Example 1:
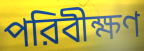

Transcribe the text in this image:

পরিবীক্ষণ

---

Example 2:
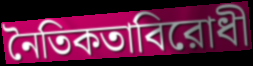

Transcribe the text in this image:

নৈতিকতাবিরোধী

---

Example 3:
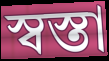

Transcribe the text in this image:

স্বস্তা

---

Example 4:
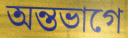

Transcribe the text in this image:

অন্তভাগে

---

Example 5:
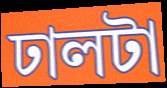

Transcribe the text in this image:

ঢালটা